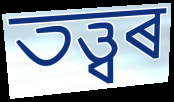
তত্ত্বৰ